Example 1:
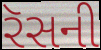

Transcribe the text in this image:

રૅસની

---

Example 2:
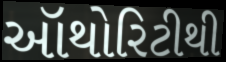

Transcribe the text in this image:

ઑથોરિટીથી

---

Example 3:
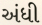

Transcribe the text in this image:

અંધી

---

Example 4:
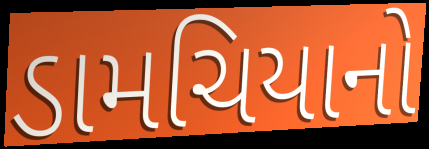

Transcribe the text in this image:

ડામચિયાનો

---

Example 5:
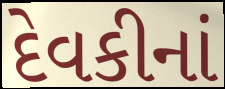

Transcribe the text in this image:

દેવકીનાં